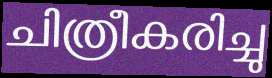
ചിത്രീകരിച്ചു